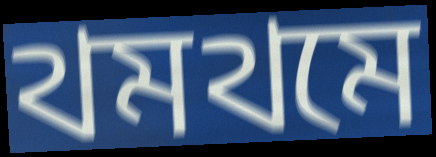
থমথমে